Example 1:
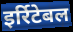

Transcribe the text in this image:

इर्रिटेबल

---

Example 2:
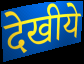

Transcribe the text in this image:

देखीये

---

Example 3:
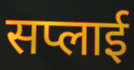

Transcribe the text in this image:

सप्लाई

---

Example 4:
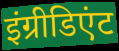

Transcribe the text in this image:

इंग्रीडिएंट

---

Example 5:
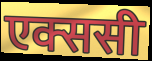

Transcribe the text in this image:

एक्ससी